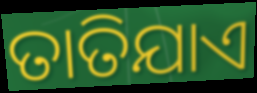
ତାତିଯାଏ